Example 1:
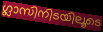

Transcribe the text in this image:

ഗ്ലാസിനിടയിലൂടെ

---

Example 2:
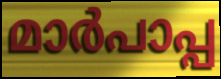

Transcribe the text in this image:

മാർപാപ്പ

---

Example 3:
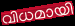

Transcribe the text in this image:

വിധമായി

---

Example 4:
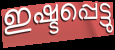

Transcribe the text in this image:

ഇഷ്ടപ്പെട്ടു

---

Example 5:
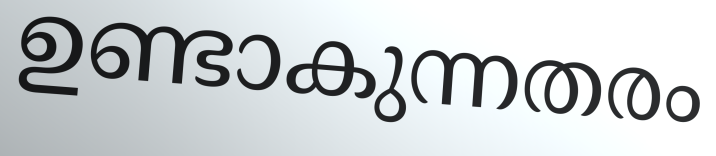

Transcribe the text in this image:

ഉണ്ടാകുന്നതരം